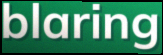
blaring